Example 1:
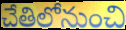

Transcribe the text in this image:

చేతిలోనుంచి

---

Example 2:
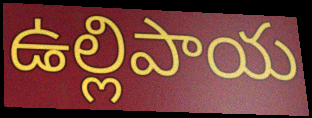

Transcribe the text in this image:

ఉల్లిపాయ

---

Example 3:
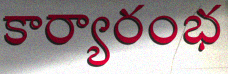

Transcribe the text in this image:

కార్యారంభ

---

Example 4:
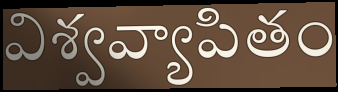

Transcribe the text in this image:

విశ్వవ్యాపితం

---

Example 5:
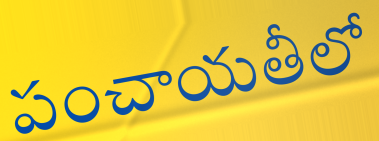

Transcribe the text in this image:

పంచాయతీలో